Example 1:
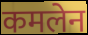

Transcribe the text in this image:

कमलेन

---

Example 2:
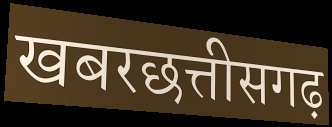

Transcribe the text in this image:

खबरछत्तीसगढ़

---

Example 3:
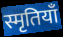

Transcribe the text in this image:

स्मृतियाँ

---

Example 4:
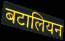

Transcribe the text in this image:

बटालियन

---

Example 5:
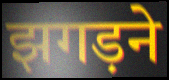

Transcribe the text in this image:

झगड़ने